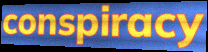
conspiracy